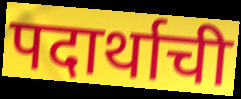
पदार्थाची